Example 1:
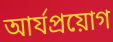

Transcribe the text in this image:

আর্যপ্রয়োগ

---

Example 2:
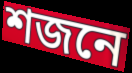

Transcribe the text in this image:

শজনে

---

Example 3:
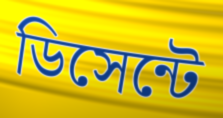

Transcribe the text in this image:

ডিসেন্টে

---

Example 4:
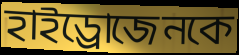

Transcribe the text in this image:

হাইড্রোজেনকে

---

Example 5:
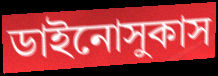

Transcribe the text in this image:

ডাইনোসুকাস